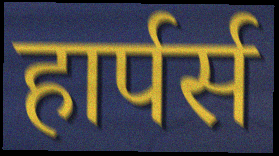
हार्पर्स